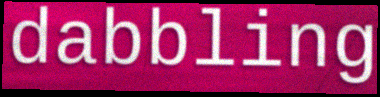
dabbling